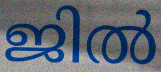
ജിൽ